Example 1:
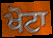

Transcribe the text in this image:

ਖੋਟਾ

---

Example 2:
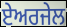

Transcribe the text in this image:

ਏਅਰਜੇਲ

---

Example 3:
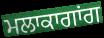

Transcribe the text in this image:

ਮਲਾਕਾਗਾਂਗ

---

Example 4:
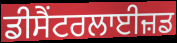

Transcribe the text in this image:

ਡੀਸੈਂਟਰਲਾਈਜ਼ਡ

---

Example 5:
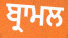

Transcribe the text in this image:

ਬ੍ਰਾਮਲ